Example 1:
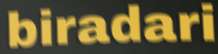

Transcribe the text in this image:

biradari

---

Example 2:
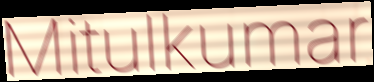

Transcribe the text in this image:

Mitulkumar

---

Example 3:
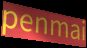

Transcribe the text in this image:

penmai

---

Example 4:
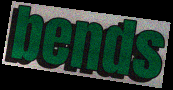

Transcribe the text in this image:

bends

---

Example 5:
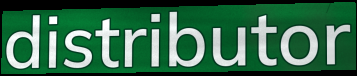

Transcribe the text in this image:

distributor